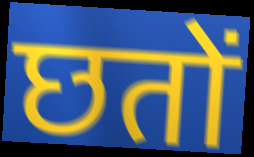
छतों